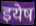
इयेष